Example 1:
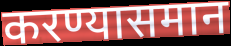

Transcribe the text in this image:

करण्यासमान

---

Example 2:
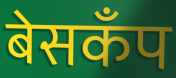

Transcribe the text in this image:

बेसकँप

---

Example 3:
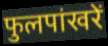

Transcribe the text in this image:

फुलपांखरें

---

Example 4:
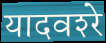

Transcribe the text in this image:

यादवश्रे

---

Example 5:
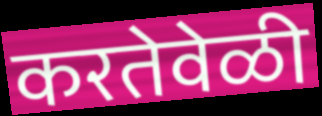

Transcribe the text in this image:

करतेवेळी